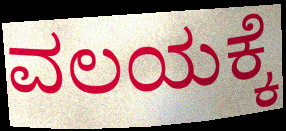
ವಲಯಕ್ಕೆ